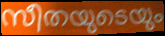
സീതയുടെയും